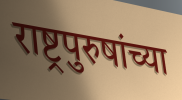
राष्ट्रपुरुषांच्या